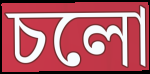
চলো